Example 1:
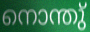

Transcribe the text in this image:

നൊന്തു്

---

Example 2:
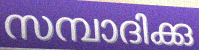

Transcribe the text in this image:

സമ്പാദിക്കു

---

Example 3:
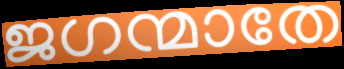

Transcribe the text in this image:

ജഗന്മാതേ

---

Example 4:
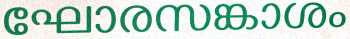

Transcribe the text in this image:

ഘോരസങ്കാശം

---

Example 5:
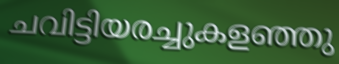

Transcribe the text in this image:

ചവിട്ടിയരച്ചുകളഞ്ഞു